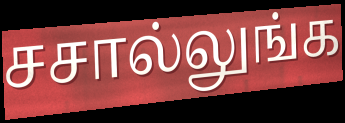
சசால்லுங்க